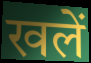
खलें